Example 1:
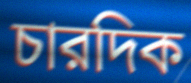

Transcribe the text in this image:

চারদিক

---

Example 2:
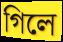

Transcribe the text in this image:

গিলে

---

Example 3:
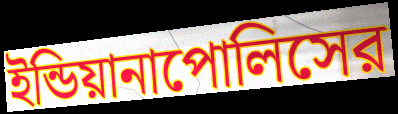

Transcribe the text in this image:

ইন্ডিয়ানাপোলিসের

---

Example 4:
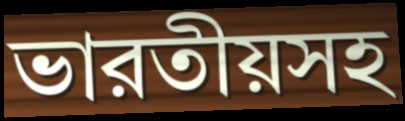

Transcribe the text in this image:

ভারতীয়সহ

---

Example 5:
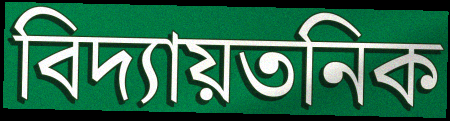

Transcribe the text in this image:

বিদ্যায়তনিক